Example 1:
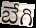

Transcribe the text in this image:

బేగి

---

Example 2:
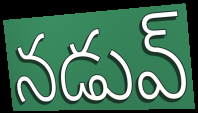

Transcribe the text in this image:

నడువ్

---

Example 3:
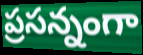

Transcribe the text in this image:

ప్రసన్నంగా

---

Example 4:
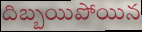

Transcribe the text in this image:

దిబ్బయిపోయిన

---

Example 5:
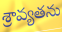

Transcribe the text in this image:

శ్రావ్యతను